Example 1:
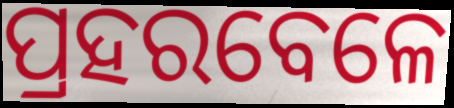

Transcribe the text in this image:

ପ୍ରହରବେଳେ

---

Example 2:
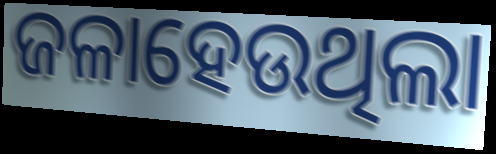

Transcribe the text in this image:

ଜଳାହେଉଥିଲା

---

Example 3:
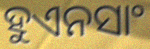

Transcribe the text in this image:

ହୁଏନସାଂ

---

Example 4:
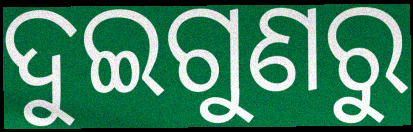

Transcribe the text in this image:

ଦୁଇଗୁଣରୁ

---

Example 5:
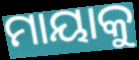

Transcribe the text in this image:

ମାୟାକୁ